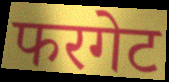
फरगेट